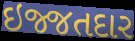
ઇજ્જતદાર